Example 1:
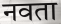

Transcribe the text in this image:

नवता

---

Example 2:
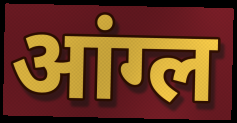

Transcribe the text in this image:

आंग्ल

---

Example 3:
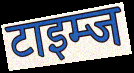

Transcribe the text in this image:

टाइम्ज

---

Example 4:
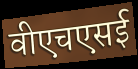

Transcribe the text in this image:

वीएचएसई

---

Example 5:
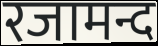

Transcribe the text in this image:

रजामन्द